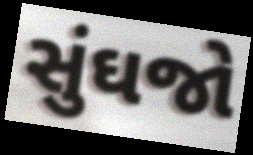
સુંઘજો